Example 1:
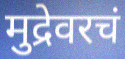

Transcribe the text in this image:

मुद्रेवरचं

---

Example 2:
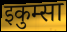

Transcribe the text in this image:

इकुम्सा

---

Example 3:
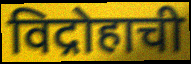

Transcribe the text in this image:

विद्रोहाची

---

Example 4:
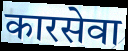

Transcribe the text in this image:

कारसेवा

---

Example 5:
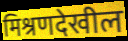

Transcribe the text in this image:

मिश्रणदेखील